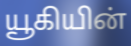
யூகியின்